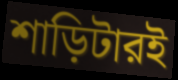
শাড়িটারই